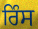
ਰਿੰਸ